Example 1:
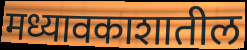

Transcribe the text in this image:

मध्यावकाशातील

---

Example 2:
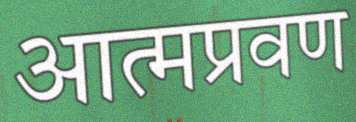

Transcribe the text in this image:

आत्मप्रवण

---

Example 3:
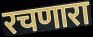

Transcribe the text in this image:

रचणारा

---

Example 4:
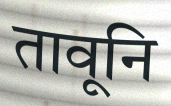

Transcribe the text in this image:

तावूनि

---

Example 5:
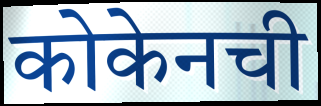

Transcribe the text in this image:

कोकेनची